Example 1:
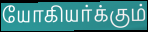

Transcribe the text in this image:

யோகியர்க்கும்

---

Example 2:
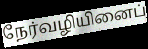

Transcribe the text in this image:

நேர்வழியினைப்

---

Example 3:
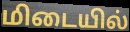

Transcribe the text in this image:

மிடையில்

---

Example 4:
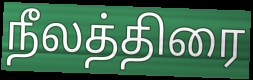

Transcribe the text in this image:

நீலத்திரை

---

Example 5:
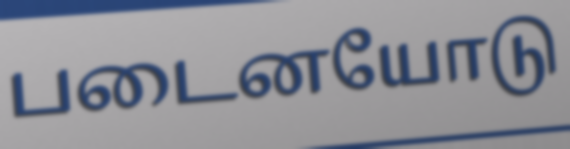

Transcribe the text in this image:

படைனயோடு